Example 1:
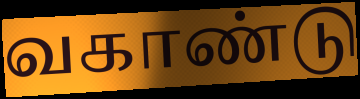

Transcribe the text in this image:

வகாண்டு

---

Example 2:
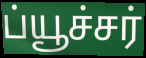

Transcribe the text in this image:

ப்யூச்சர்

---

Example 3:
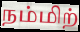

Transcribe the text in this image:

நம்மிற்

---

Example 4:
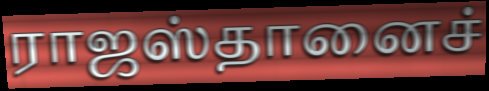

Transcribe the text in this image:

ராஜஸ்தானைச்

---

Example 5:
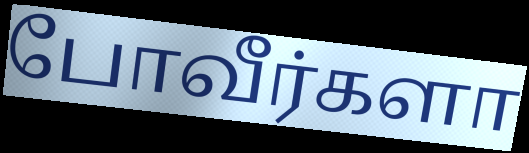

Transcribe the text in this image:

போவீர்களா